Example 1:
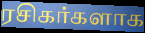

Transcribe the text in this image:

ரசிகர்களாக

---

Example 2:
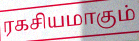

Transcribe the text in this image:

ரகசியமாகும்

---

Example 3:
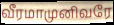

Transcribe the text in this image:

வீரமாமுனிவரே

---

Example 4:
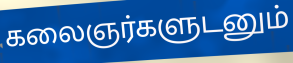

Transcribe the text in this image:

கலைஞர்களுடனும்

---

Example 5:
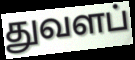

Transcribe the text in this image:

துவளப்